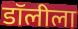
डॉलीला